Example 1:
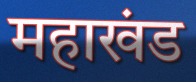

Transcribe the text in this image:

महाखंड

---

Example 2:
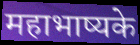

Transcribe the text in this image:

महाभाष्यके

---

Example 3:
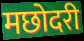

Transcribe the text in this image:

मछोदरी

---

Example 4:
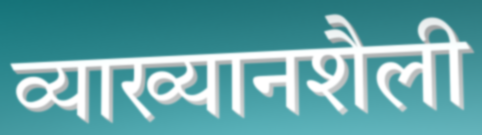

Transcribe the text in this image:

व्याख्यानशैली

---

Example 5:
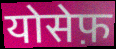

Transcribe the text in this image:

योसेफ़